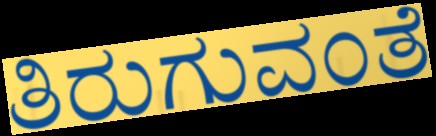
ತಿರುಗುವಂತೆ